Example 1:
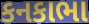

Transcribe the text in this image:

કનકાભા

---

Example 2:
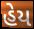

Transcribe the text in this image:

હેય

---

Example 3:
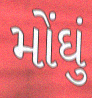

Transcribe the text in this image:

મોંઘું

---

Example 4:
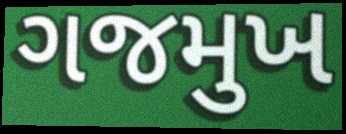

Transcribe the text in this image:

ગજમુખ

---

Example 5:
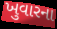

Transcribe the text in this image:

ખુવારના